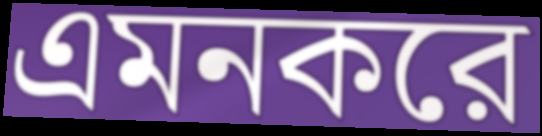
এমনকরে